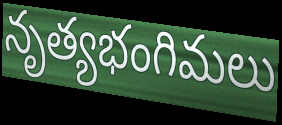
నృత్యభంగిమలు